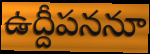
ఉద్దీపననూ